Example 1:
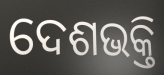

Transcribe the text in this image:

ଦେଶଭକ୍ତି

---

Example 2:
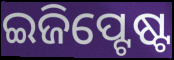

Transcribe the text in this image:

ଇଜିପ୍ଟେଷ୍ଟ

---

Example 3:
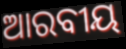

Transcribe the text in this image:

ଆରବୀୟ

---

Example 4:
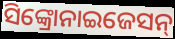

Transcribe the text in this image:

ସିଙ୍କ୍ରୋନାଇଜେସନ୍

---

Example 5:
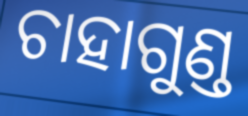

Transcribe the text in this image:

ଚାହାଗୁଣ୍ଡ